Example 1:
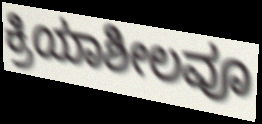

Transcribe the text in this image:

ಕ್ರಿಯಾಶೀಲವೂ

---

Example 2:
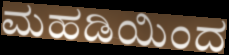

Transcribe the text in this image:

ಮಹಡಿಯಿಂದ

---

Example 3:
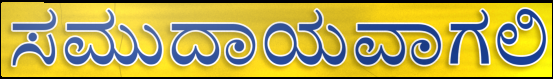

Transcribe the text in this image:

ಸಮುದಾಯವಾಗಲಿ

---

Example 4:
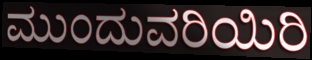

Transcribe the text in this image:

ಮುಂದುವರಿಯಿರಿ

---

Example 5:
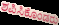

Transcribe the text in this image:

ಶಪಿಸಿಕೊಂಡರು